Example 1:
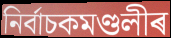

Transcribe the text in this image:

নিৰ্বাচকমণ্ডলীৰ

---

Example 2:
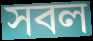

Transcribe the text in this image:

সবল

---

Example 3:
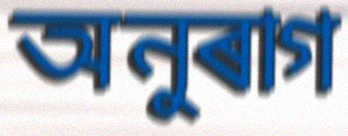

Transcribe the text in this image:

অনুৰাগ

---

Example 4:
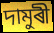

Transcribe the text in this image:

দামুৰী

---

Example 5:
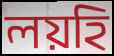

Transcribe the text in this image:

লয়হি